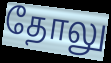
தோலு